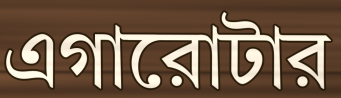
এগারোটার